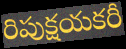
రిపుక్షయకరీ